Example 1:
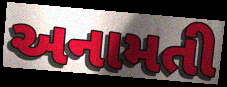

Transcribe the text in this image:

અનામતી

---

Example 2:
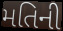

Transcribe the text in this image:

મતિની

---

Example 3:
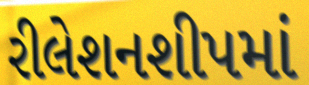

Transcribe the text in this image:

રીલેશનશીપમાં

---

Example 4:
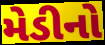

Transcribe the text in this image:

મેડીનો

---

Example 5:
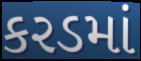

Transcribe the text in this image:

કરડમાં